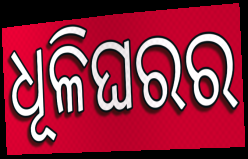
ଧୂଳିଘରର